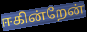
ஈகின்றேன்